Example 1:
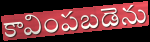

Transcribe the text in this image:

కావింపబడెను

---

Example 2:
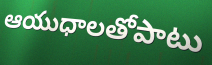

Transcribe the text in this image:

ఆయుధాలతోపాటు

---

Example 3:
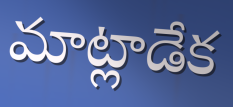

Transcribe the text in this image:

మాట్లాడేక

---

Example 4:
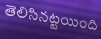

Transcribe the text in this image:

తెలిసినట్టయింది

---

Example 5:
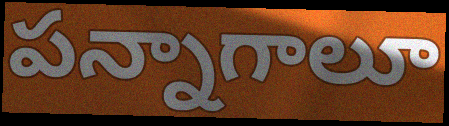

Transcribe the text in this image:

పన్నాగాలూ